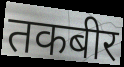
तकबीर